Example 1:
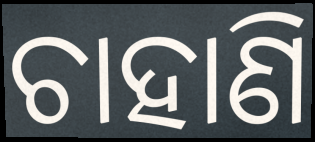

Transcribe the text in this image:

ଚାହାଣି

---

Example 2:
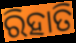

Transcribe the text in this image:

ରିହାତି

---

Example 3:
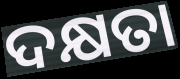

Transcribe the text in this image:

ଦକ୍ଷତା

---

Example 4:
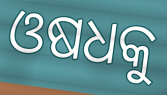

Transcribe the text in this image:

ଓଷଧକୁ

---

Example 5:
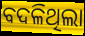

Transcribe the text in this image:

ବଦଳିଥିଲା